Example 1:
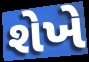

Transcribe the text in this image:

શેખે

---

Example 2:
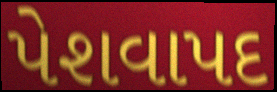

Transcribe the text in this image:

પેશવાપદ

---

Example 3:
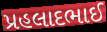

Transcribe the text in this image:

પ્રહલાદભાઈ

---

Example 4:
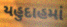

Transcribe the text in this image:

યહુદાહમાં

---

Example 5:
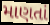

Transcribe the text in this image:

માણતાં